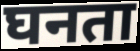
घनता